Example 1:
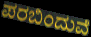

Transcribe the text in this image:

ಪರಬಿಂದುವೆ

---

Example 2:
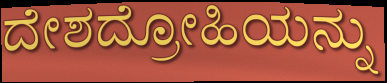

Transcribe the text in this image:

ದೇಶದ್ರೋಹಿಯನ್ನು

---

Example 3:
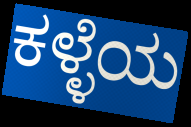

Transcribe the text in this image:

ಕಳ್ಳೆಯ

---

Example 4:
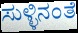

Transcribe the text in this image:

ಸುಳ್ಳಿನಂತೆ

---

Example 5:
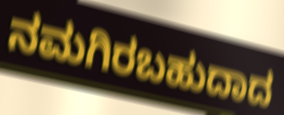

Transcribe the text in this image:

ನಮಗಿರಬಹುದಾದ